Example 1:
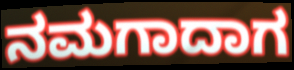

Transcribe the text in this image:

ನಮಗಾದಾಗ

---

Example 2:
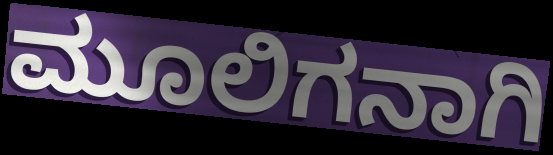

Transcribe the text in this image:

ಮೂಲಿಗನಾಗಿ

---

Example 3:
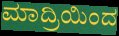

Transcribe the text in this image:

ಮಾದ್ರಿಯಿಂದ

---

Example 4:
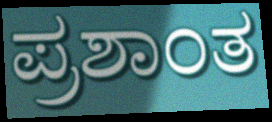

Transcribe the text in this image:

ಪ್ರಶಾಂತ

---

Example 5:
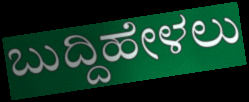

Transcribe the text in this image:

ಬುದ್ದಿಹೇಳಲು